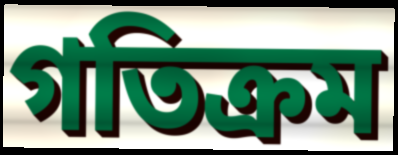
গতিক্রম